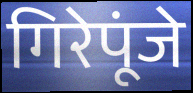
गिरेपूंजे